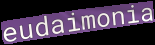
eudaimonia